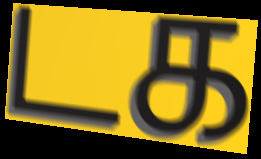
டக